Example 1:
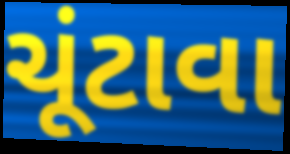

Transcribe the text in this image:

ચૂંટાવા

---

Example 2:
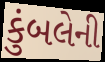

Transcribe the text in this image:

કુંબલેની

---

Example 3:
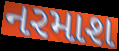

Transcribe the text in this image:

નરમાશ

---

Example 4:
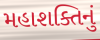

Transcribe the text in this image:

મહાશક્તિનું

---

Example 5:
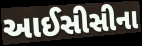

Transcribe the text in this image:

આઈસીસીના